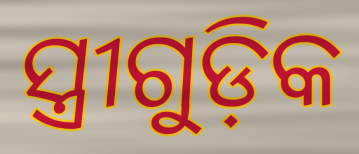
ସ୍ତ୍ରୀଗୁଡ଼ିକ